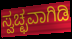
ಸ್ವಚ್ಛವಾಗಿಡಿ